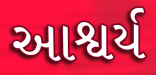
આશ્વર્ય